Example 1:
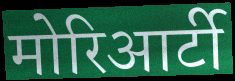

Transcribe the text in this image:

मोरिआर्टी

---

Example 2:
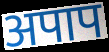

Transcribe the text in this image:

अपाप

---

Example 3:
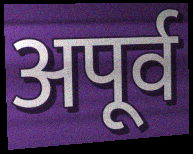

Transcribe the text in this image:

अपूर्व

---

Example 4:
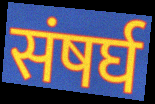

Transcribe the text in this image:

संषर्घ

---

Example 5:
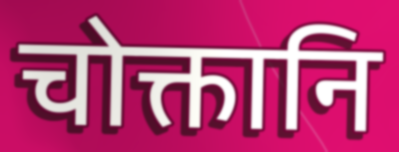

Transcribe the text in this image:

चोक्तानि